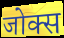
जोक्स